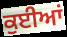
ਕੁਈਆਂ